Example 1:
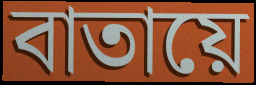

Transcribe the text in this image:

বাতায়ে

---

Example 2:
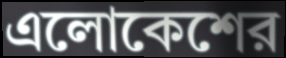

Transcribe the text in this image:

এলোকেশের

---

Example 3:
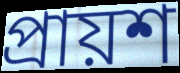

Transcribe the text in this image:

প্রায়শ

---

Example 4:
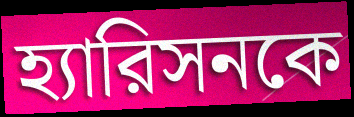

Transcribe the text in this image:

হ্যারিসনকে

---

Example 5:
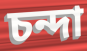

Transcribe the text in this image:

চন্দা